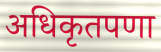
अधिकृतपणा